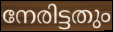
നേരിട്ടതും